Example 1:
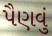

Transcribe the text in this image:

પૈણવું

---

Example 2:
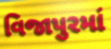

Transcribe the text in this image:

વિજાપુરમાં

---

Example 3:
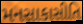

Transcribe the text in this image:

મનસાકાસીતિ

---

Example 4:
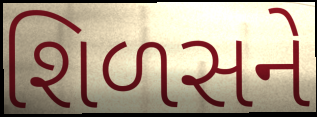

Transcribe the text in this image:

શિળસને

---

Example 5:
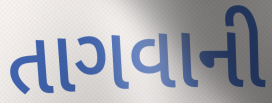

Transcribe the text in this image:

તાગવાની